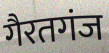
गैरतगंज